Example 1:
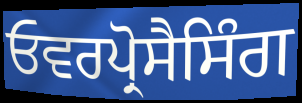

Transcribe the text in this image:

ਓਵਰਪ੍ਰੋਸੈਸਿੰਗ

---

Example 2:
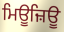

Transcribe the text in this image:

ਮਿਊਜ਼ਿਊ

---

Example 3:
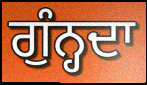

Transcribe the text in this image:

ਗੁੰਨ੍ਹਦਾ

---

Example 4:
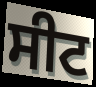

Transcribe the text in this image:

ਸੀਟ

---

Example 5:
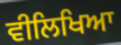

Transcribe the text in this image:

ਵੀਲਿਖਿਆ